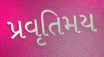
પ્રવૃતિમય